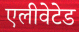
एलीवेटेड